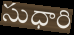
సుధారి